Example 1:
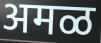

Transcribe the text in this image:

अमळ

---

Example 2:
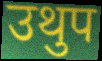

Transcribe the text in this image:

उथुप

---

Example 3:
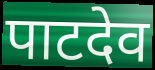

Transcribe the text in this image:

पाटदेव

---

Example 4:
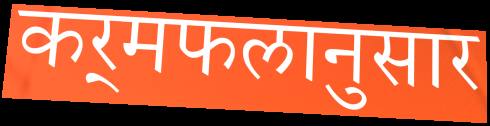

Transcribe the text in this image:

कर्मफलानुसार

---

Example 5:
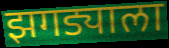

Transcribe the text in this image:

झगड्याला